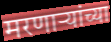
मरणाऱ्यांच्या